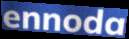
ennoda